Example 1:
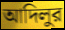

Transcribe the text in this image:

আদিলুর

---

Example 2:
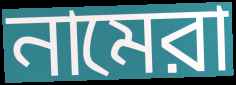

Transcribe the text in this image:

নামেরা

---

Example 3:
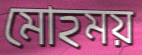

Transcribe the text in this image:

মোহময়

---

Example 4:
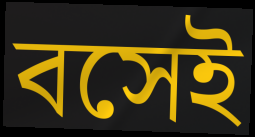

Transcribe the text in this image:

বসেই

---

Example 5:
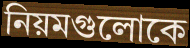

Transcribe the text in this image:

নিয়মগুলোকে